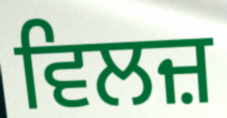
ਵਿਲਜ਼